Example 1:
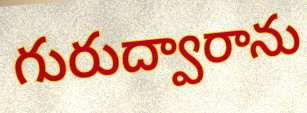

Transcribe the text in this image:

గురుద్వారాను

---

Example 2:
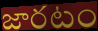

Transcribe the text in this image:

జారటం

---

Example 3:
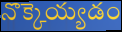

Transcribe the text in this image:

నొక్కెయ్యడం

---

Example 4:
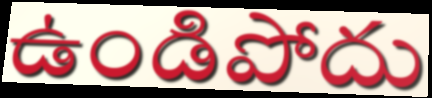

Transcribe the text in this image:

ఉండిపోదు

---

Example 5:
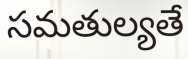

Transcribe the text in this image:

సమతుల్యతే